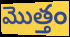
మొత్తం